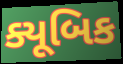
ક્યૂબિક